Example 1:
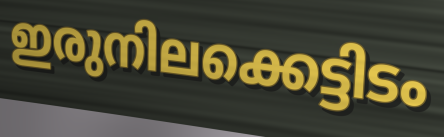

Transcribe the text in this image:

ഇരുനിലക്കെട്ടിടം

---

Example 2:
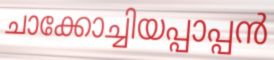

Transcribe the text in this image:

ചാക്കോച്ചിയപ്പാപ്പൻ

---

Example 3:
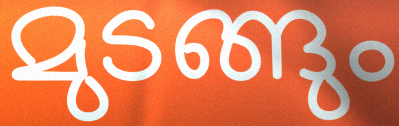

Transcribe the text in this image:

മുടങ്ങും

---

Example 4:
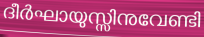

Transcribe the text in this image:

ദീർഘായുസ്സിനുവേണ്ടി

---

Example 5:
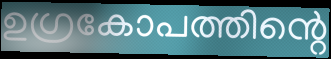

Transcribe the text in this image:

ഉഗ്രകോപത്തിന്റെ